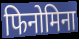
फिनोमिना